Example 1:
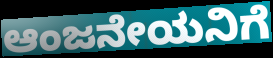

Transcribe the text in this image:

ಆಂಜನೇಯನಿಗೆ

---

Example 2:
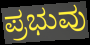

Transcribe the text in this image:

ಪ್ರಭುವು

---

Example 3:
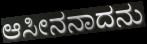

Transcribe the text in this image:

ಆಸೀನನಾದನು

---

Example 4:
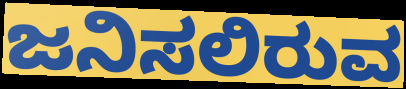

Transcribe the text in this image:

ಜನಿಸಲಿರುವ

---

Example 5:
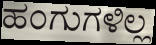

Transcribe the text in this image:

ಹಂಗುಗಳಿಲ್ಲ